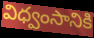
విధ్వంసానికి